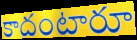
కాదంటారూ